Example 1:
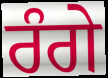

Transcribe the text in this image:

ਰੰਗੇ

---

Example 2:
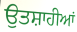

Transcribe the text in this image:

ਉਤਸ਼ਾਹੀਆਂ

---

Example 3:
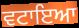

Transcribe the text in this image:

ਵਟਾਇਆ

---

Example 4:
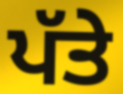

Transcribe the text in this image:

ਪੱਤੇ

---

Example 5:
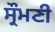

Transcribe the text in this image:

ਸ੍ਰੌਮਣੀ